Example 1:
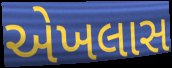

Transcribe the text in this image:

એખલાસ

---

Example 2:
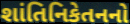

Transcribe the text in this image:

શાંતિનિકેતનનો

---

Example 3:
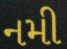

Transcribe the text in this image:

નમી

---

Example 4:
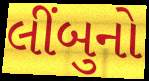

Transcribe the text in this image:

લીંબુનો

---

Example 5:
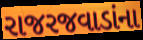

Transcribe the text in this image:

રાજરજવાડાંના